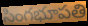
సింగభూపతి